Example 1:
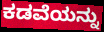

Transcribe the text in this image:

ಕಡವೆಯನ್ನು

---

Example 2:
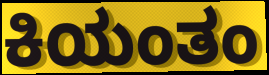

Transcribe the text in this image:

ಕಿಯಂತಂ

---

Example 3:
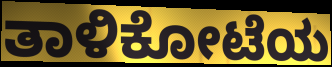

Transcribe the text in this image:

ತಾಳಿಕೋಟೆಯ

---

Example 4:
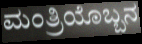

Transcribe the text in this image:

ಮಂತ್ರಿಯೊಬ್ಬನ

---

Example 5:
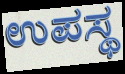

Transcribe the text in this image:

ಉಪಸ್ಥ